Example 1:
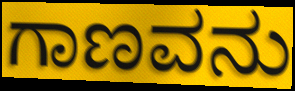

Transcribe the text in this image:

ಗಾಣವನು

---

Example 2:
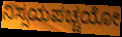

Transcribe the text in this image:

ನಿಸ್ಸಯಪಚ್ಚಯೋ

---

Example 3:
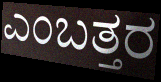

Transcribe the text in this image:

ಎಂಬತ್ತರ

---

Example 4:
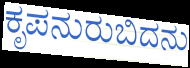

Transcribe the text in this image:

ಕೃಪನುರುಬಿದನು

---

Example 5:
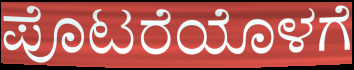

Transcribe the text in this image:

ಪೊಟರೆಯೊಳಗೆ